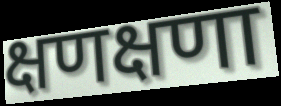
क्षणक्षणा